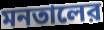
মনতালের